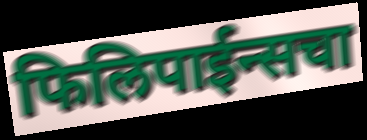
फिलिपाईन्सचा